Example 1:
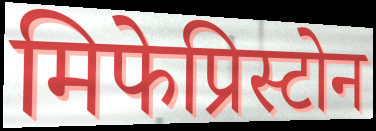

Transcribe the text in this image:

मिफेप्रिस्टोन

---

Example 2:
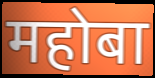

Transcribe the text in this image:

महोबा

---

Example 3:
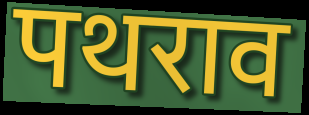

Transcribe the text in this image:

पथराव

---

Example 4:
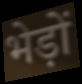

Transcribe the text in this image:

भेड़ों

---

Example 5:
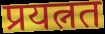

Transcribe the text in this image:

प्रयत्नत